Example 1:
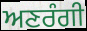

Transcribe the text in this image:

ਅਣਰੰਗੀ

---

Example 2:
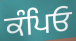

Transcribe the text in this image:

ਕੰਪਿਓ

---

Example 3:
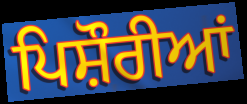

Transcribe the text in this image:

ਪਿਸ਼ੌਰੀਆਂ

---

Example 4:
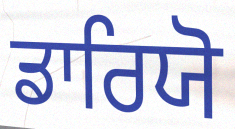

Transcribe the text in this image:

ਡਾਰਿਯੋ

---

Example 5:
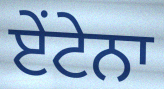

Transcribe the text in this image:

ਏਂਟੇਨਾ